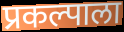
प्रकल्पाला